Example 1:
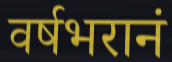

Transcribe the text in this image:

वर्षभरानं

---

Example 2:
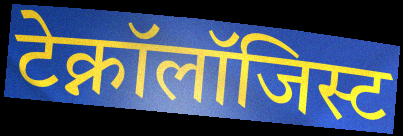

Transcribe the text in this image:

टेक्नॉलॉजिस्ट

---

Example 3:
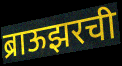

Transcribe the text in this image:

ब्राऊझरची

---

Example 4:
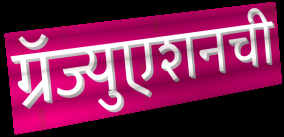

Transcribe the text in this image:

ग्रॅज्युएशनची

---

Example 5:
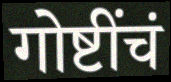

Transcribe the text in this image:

गोष्टींचं